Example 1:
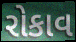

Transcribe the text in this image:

રોકાવ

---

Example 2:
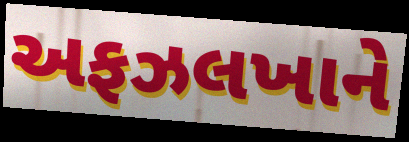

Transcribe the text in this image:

અફઝલખાને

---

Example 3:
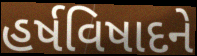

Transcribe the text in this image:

હર્ષવિષાદને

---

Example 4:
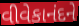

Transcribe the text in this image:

વીવેકાનંદને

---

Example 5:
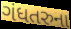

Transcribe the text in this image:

ગંધતરુના